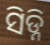
ସିଡ୍ନି